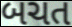
બચત